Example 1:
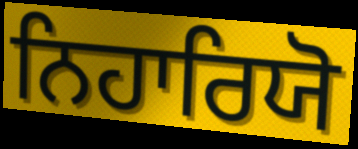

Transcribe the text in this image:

ਨਿਹਾਰਿਯੋ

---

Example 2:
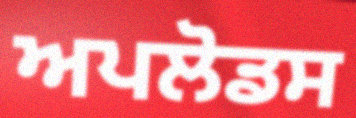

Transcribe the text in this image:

ਅਪਲੋਡਸ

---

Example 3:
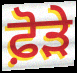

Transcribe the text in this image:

ਫ਼ੋੜੇ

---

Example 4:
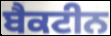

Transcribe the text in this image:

ਬੈਕਟੀਨ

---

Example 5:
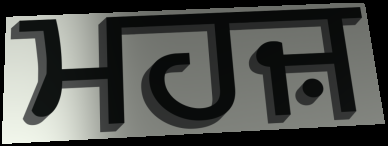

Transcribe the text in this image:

ਮਹਜ਼